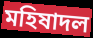
মহিষাদল